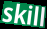
skill